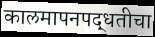
कालमापनपद्धतीचा